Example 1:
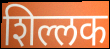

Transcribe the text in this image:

शिल्लक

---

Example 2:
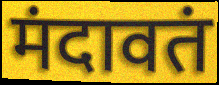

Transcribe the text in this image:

मंदावतं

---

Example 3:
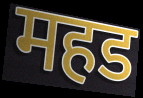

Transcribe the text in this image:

महड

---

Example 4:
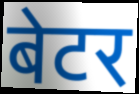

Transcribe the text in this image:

बेटर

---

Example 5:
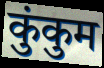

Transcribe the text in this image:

कुंकुम